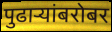
पुढाऱ्यांबरोबर